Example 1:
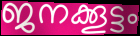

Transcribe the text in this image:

ജനക്കൂട്ടം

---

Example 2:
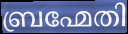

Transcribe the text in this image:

ബ്രഹ്മേതി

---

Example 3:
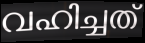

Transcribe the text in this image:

വഹിച്ചത്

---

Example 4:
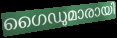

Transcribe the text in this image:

ഗൈഡുമാരായി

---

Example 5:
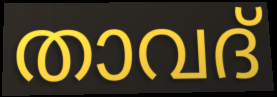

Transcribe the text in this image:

താവദ്